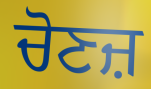
ਚੋਣਜ਼